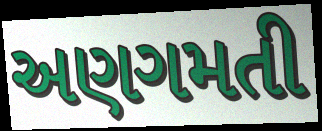
અણગમતી